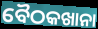
ବୈଠକଖାନା